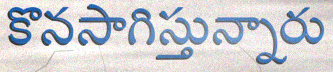
కొనసాగిస్తున్నారు